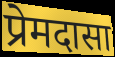
प्रेमदासा